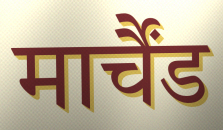
मार्चैंड